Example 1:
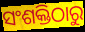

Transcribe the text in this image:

ସଂଶକ୍ତିଠାରୁ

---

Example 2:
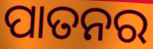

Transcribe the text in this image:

ପାତନର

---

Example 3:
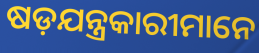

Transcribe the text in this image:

ଷଡ଼ଯନ୍ତ୍ରକାରୀମାନେ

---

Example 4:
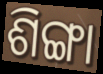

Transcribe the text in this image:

ଶିଙ୍ଗା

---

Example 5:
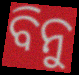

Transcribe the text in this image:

ବିନୁ